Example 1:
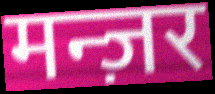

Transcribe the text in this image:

मन्ज़र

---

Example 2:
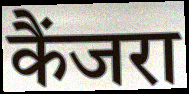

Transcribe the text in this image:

कैंजरा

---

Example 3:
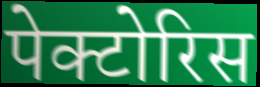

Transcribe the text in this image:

पेक्टोरिस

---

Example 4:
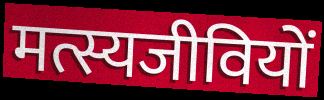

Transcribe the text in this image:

मत्स्यजीवियों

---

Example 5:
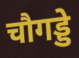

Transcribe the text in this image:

चौगड्डे